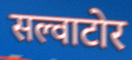
सल्वाटोर